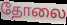
தோலை